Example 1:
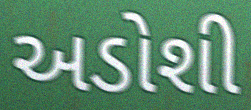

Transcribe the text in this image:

અડોશી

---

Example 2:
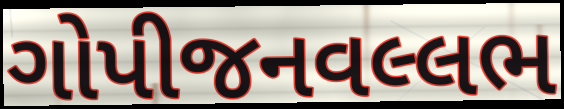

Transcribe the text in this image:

ગોપીજનવલ્લભ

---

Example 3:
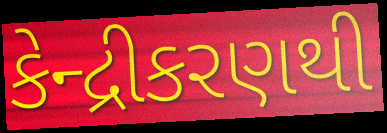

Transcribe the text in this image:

કેન્દ્રીકરણથી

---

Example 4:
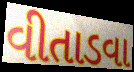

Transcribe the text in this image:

વીતાડવા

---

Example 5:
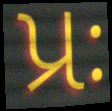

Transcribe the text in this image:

પ્રઃ